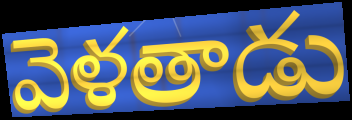
వెళతాడు